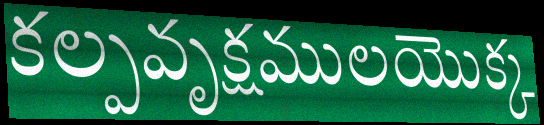
కల్పవృక్షములయొక్క